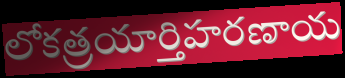
లోకత్రయార్తిహరణాయ